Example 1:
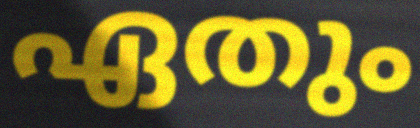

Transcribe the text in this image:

ഏതും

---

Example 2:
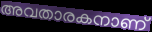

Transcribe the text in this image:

അവതാരകനാണ്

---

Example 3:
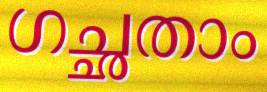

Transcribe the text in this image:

ഗച്ഛതാം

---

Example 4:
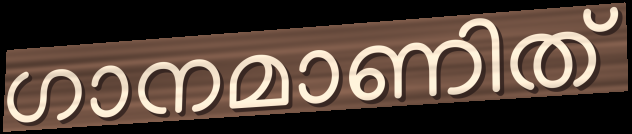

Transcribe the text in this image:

ഗാനമാണിത്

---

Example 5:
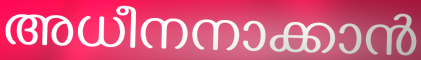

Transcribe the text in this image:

അധീനനാക്കാൻ